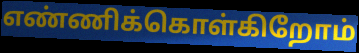
எண்ணிக்கொள்கிறோம்